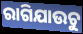
ରାଗିଯାଉଚୁ